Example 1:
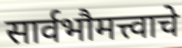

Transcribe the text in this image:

सार्वभौमत्त्वाचे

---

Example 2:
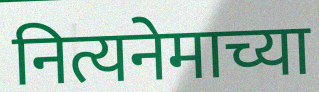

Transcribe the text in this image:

नित्यनेमाच्या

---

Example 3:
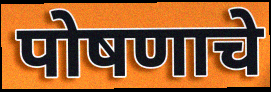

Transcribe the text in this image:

पोषणाचे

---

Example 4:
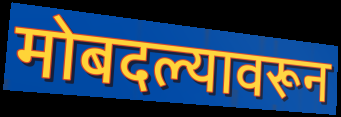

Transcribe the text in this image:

मोबदल्यावरून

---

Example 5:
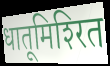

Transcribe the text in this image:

धातूमिश्रित